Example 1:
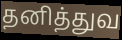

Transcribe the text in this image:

தனித்துவ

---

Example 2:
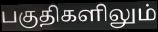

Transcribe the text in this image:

பகுதிகளிலும்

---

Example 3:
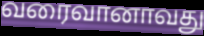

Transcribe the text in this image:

வரைவானாவது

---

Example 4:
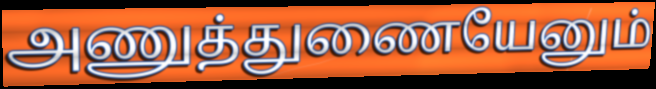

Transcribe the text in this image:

அணுத்துணையேனும்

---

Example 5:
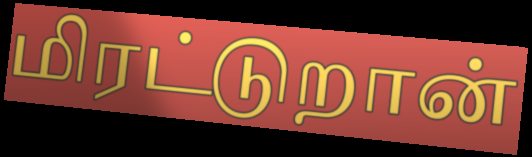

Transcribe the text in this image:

மிரட்டுறான்